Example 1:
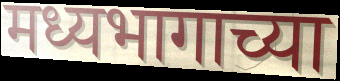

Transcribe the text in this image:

मध्यभागाच्या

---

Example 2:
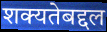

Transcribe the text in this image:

शक्यतेबद्दल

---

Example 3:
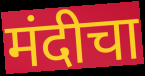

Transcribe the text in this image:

मंदीचा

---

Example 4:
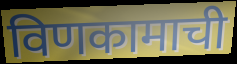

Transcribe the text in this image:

विणकामाची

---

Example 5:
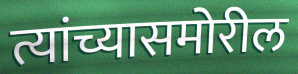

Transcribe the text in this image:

त्यांच्यासमोरील